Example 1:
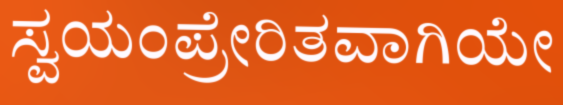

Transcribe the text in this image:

ಸ್ವಯಂಪ್ರೇರಿತವಾಗಿಯೇ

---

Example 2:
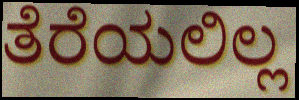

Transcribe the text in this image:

ತೆರೆಯಲಿಲ್ಲ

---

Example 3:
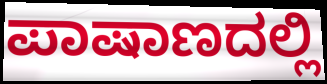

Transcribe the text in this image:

ಪಾಷಾಣದಲ್ಲಿ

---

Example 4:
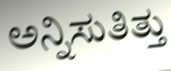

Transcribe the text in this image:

ಅನ್ನಿಸುತಿತ್ತು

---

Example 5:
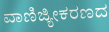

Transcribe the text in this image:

ವಾಣಿಜ್ಯೀಕರಣದ